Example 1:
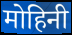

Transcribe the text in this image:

मोहिनी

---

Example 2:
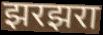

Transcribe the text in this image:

झरझरा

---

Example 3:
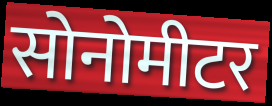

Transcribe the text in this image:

सोनोमीटर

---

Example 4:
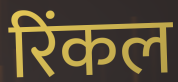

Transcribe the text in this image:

रिंकल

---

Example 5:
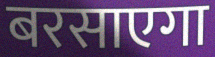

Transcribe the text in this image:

बरसाएगा